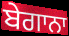
ਬੇਗਾਨਾ